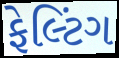
ફેલ્ટિંગ